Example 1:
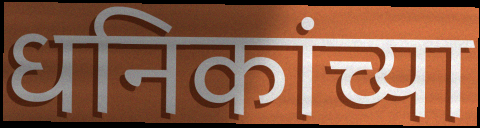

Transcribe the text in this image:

धनिकांच्या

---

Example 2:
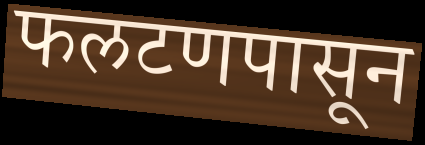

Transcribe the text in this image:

फलटणपासून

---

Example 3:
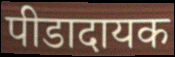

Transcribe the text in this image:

पीडादायक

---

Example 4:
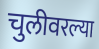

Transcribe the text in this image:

चुलीवरल्या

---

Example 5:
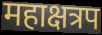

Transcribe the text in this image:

महाक्षत्रप